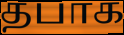
தபாக